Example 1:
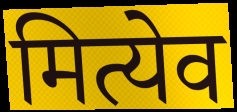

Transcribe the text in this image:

मित्येव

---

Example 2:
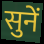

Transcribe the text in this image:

सुनें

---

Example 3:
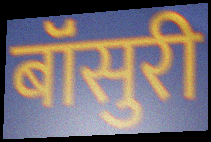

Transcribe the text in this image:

बॉंसुरी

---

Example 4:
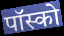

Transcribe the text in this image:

पॉस्‍को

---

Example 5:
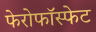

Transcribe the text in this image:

फेरोफॉस्फेट